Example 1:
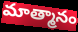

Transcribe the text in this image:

మాత్మానం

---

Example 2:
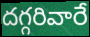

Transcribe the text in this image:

దగ్గరివారే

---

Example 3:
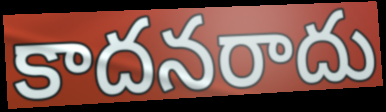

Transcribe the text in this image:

కాదనరాదు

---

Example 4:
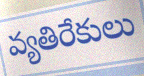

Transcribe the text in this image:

వ్యతిరేకులు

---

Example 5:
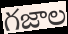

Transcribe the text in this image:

గజాల